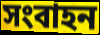
সংবাহন